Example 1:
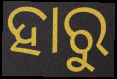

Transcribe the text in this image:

ହାରୁ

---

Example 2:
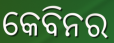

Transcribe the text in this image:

କେବିନର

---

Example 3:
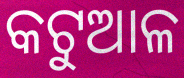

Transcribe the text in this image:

କଟୁଆଳ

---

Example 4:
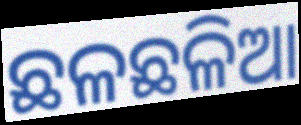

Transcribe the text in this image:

ଛଳଛଳିଆ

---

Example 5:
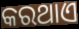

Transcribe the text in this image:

କରଥାଏ